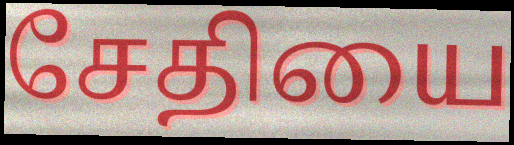
சேதியை